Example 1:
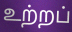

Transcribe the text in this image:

உற்றப்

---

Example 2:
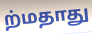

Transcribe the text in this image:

ற்மதாது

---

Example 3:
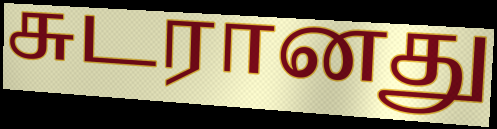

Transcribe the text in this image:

சுடரானது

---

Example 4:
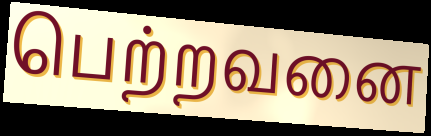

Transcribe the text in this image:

பெற்றவனை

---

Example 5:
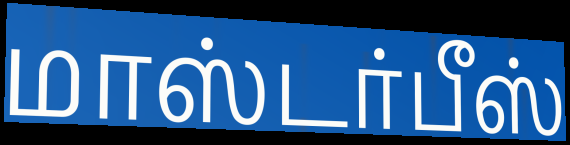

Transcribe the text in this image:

மாஸ்டர்பீஸ்